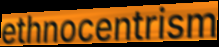
ethnocentrism